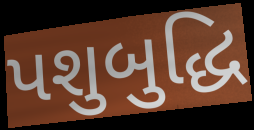
પશુબુદ્ધિ